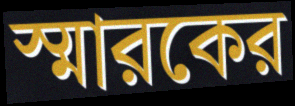
স্মারকের